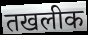
तखलीक